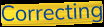
Correcting